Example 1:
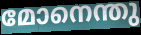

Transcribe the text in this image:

മോനെന്തു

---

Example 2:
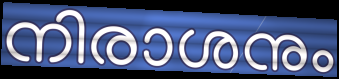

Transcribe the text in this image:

നിരാശനും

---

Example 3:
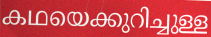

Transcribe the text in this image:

കഥയെക്കുറിച്ചുള്ള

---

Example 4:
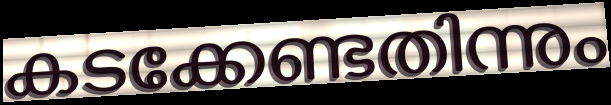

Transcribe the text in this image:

കടക്കേണ്ടതിന്നും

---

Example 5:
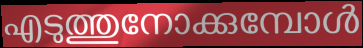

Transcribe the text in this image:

എടുത്തുനോക്കുമ്പോൾ